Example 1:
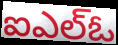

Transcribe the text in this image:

ఐఎల్ఓ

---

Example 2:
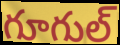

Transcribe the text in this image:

గూగుల్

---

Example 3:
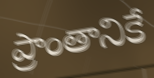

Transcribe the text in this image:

ప్రాంతానికే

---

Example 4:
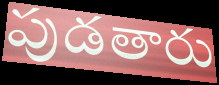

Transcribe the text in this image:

పుడతారు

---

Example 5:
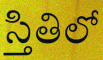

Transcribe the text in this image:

స్తితిలో